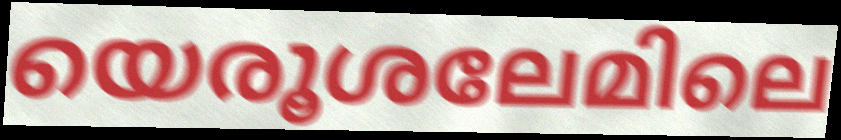
യെരൂശലേമിലെ